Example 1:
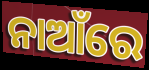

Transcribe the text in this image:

ନାଆଁରେ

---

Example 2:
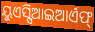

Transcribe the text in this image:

ୟୁଏସ୍ସିଆଇଆର୍ଏଫ୍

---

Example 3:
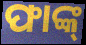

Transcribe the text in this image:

ଫାଙ୍କ୍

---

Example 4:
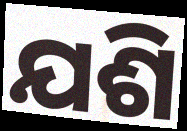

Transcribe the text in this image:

ଯଶି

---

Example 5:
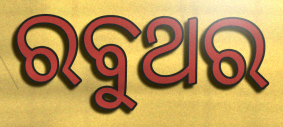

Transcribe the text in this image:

ରବୁଥର